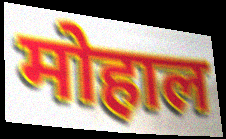
मोहाल